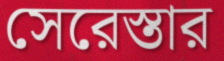
সেরেস্তার